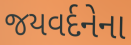
જયવર્દનેના